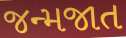
જન્મજાત